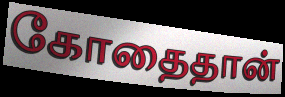
கோதைதான்